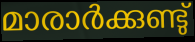
മാരാർക്കുണ്ടു്